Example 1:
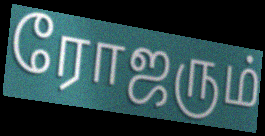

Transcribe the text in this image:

ரோஜரும்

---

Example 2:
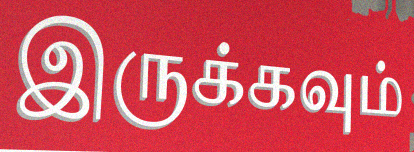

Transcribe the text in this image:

இருக்கவும்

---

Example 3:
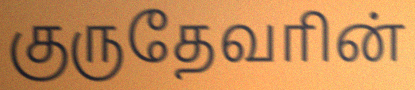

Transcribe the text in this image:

குருதேவரின்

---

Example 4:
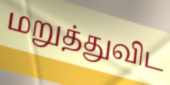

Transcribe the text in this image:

மறுத்துவிட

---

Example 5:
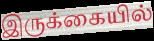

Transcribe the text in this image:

இருக்கையில்